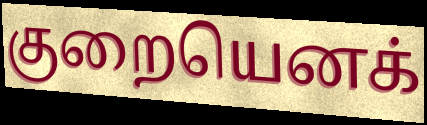
குறையெனக்